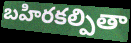
బహిరకల్పితా